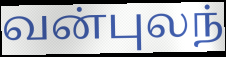
வன்புலந்